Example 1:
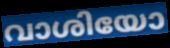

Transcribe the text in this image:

വാശിയോ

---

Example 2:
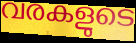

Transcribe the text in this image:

വരകളുടെ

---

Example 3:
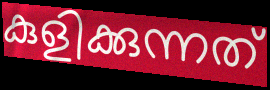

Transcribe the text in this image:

കുളിക്കുന്നത്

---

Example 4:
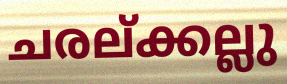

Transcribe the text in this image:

ചരല്ക്കല്ലു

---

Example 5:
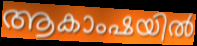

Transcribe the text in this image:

ആകാംഷയിൽ